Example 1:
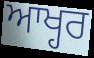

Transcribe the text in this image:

ਆਖ੍ਹਰ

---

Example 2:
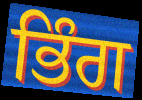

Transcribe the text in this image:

ਭਿੰਗ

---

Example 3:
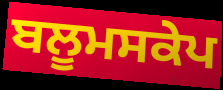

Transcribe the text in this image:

ਬਲੂਮਸਕੇਪ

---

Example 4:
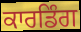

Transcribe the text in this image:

ਕਾਰਡਿੰਗ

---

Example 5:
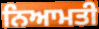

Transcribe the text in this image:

ਨਿਆਮਤੀ